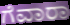
ಗೆವಾರಾ